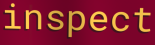
inspect